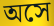
অসে